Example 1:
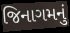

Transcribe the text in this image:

જિનાગમનું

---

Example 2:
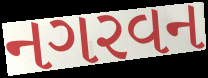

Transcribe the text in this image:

નગરવન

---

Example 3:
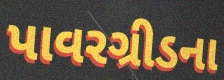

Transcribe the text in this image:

પાવરગ્રીડના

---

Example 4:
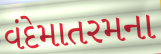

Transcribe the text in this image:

વંદેમાતરમના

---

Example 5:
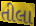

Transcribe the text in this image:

તીલા